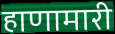
हाणामारी